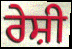
ਰੇਸ਼ੀ